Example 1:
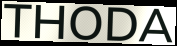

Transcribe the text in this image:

THODA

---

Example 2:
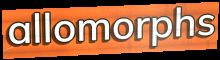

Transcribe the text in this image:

allomorphs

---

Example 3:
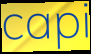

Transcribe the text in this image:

capi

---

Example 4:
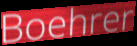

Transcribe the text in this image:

Boehrer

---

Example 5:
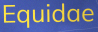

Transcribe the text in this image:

Equidae